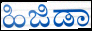
ಹಿಜಿಡಾ